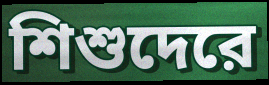
শিশুদেরে